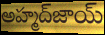
అహ్మద్‌జాయ్